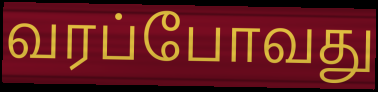
வரப்போவது